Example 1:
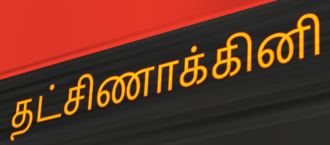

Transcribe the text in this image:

தட்சிணாக்கினி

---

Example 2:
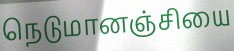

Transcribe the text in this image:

நெடுமானஞ்சியை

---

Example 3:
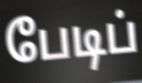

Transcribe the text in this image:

பேடிப்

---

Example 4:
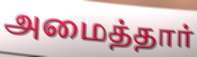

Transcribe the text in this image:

அமைத்தார்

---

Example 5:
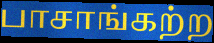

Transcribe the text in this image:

பாசாங்கற்ற